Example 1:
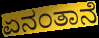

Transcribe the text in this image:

ಏನಂತಾನೆ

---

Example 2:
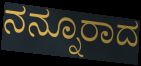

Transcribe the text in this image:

ನನ್ನೂರಾದ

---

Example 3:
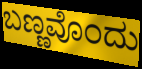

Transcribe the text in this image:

ಬಣ್ಣವೊಂದು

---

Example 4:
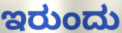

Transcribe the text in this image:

ಇರುಂದು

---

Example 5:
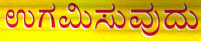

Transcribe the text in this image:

ಉಗಮಿಸುವುದು